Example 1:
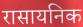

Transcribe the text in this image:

रासायनिक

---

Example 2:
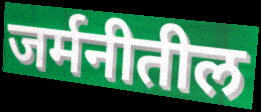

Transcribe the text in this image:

जर्मनीतील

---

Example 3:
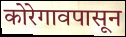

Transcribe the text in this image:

कोरेगावपासून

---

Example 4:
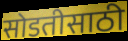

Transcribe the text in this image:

सोडतीसाठी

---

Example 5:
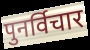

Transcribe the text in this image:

पुनर्विचार